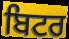
ਬਿਟਰ